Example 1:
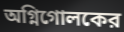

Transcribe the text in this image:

অগ্নিগোলকের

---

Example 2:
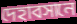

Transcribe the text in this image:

দেহাবসানে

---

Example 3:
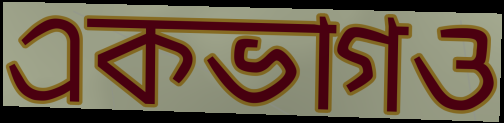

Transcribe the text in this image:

একভাগও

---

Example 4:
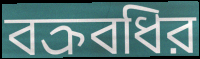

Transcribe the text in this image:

বক্রবধির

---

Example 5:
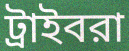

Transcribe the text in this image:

ট্রাইবরা